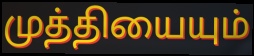
முத்தியையும்